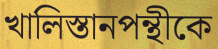
খালিস্তানপন্থীকে